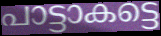
പാട്ടാകട്ടെ